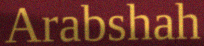
Arabshah